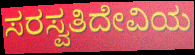
ಸರಸ್ವತಿದೇವಿಯ